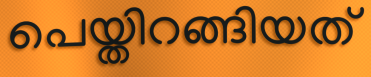
പെയ്തിറങ്ങിയത്